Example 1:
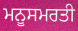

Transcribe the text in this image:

ਮਨੂਸਮਰਤੀ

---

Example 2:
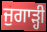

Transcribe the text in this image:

ਜੁਗਾੜ੍ਹੀ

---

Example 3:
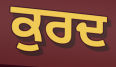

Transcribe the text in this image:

ਕੁਰਦ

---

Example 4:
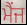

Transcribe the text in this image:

ਮੈਂਜ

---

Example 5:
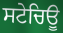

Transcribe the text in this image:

ਸਟੇਚਿਊ